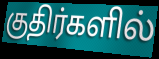
குதிர்களில்